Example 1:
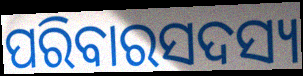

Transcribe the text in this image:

ପରିବାରସଦସ୍ୟ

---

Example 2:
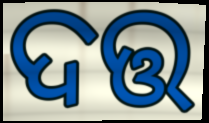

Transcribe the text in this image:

ଦତ୍ତ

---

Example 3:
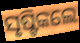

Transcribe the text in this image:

ସୃଷ୍ଟିକଲେ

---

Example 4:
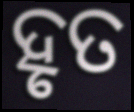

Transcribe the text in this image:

ହୃତ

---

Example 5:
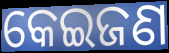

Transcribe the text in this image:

କେଇଜଣ